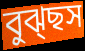
বুঝ্ছস